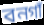
বনগাঁ